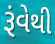
રૂંવેથી